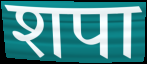
शपा